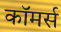
कॉमर्स